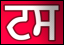
ਟਸ